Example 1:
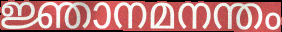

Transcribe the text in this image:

ജ്ഞാനമനന്തം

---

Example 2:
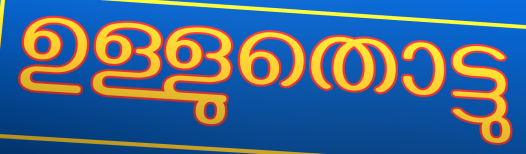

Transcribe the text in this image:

ഉള്ളുതൊട്ടു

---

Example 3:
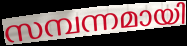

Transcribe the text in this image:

സമ്പന്നമായി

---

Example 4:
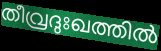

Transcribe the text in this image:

തീവ്രദുഃഖത്തിൽ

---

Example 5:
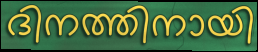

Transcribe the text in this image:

ദിനത്തിനായി